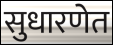
सुधारणेत